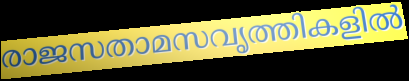
രാജസതാമസവൃത്തികളിൽ